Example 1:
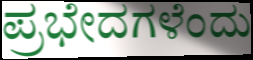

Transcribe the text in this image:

ಪ್ರಭೇದಗಳೆಂದು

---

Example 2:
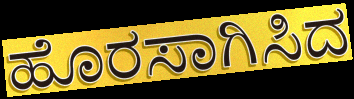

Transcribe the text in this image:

ಹೊರಸಾಗಿಸಿದ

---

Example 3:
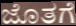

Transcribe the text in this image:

ಜೊತಗೆ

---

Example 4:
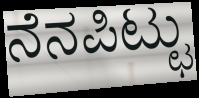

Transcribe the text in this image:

ನೆನಪಿಟ್ಟು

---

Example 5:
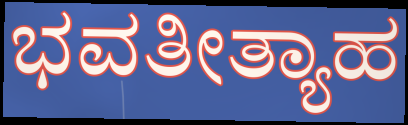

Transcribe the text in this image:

ಭವತೀತ್ಯಾಹ